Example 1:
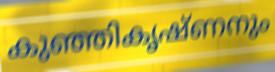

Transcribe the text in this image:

കുഞ്ഞികൃഷ്ണനും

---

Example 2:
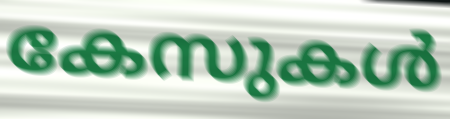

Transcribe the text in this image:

കേസുകൾ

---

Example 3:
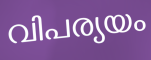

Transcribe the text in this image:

വിപര്യയം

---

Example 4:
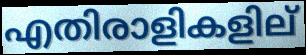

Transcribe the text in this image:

എതിരാളികളില്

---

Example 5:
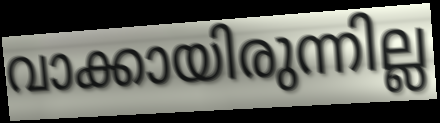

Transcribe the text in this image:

വാക്കായിരുന്നില്ല